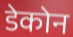
डेकोन